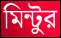
মিন্টুর